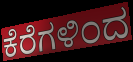
ಕೆರೆಗಳಿಂದ